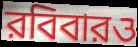
রবিবারও